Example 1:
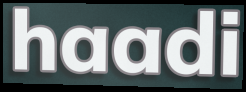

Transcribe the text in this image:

haadi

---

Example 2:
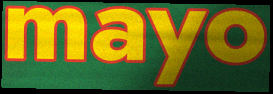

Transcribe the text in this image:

mayo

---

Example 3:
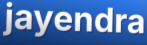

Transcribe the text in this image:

jayendra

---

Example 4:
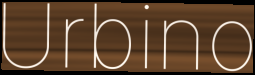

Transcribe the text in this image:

Urbino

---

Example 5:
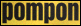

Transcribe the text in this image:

pompon